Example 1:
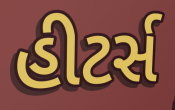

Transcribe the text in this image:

હીટર્સ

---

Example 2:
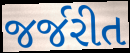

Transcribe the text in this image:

જર્જરીત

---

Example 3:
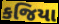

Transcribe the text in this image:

કજિયા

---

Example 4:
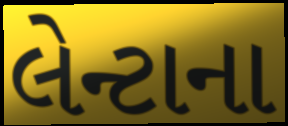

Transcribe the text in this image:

લેન્ટાના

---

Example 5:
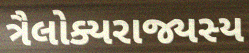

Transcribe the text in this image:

ત્રૈલોક્યરાજ્યસ્ય